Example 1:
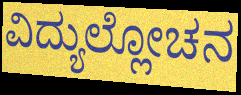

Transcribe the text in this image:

ವಿದ್ಯುಲ್ಲೋಚನ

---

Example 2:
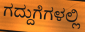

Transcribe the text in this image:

ಗದ್ದುಗೆಗಳಲ್ಲಿ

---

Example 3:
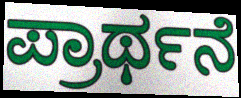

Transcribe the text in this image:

ಪ್ರಾರ್ಥನೆ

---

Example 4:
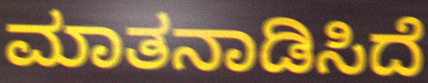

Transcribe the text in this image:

ಮಾತನಾಡಿಸಿದೆ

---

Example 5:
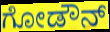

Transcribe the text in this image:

ಗೋಡೌನ್